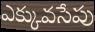
ఎక్కువసేపు